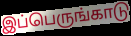
இப்பெருங்காடு